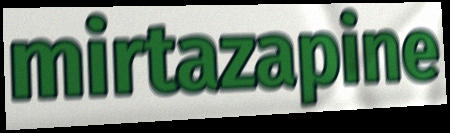
mirtazapine